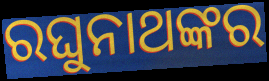
ରଘୁନାଥଙ୍କର